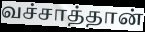
வச்சாத்தான்